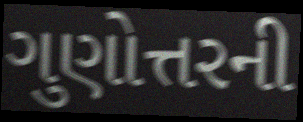
ગુણોત્તરની